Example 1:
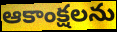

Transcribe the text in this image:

ఆకాంక్షలను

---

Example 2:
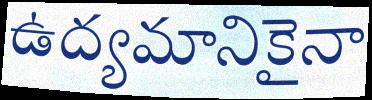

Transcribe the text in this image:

ఉద్యమానికైనా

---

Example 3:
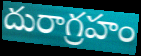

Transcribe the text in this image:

దురాగ్రహం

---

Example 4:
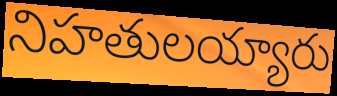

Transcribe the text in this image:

నిహతులయ్యారు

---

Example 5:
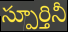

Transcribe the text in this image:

స్పూర్తినీ